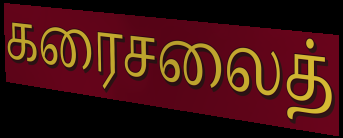
கரைசலைத்